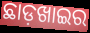
ଛାଡ଼ଖାଇର